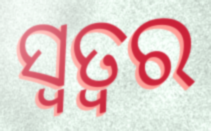
ସ୍ୱତ୍ୱର